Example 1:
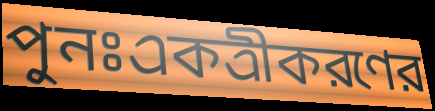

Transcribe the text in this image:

পুনঃএকত্রীকরণের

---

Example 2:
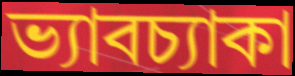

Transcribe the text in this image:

ভ্যাবচ্যাকা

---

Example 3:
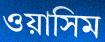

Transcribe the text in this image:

ওয়াসিম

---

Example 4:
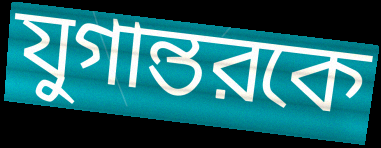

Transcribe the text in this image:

যুগান্তরকে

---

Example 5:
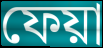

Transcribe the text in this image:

ফেয়া